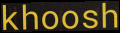
khoosh